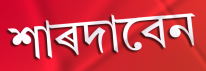
শাৰদাবেন